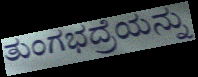
ತುಂಗಭದ್ರೆಯನ್ನು